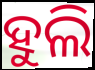
ହୁଲି